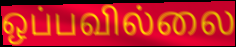
ஒப்பவில்லை